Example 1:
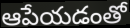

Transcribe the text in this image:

ఆపేయడంతో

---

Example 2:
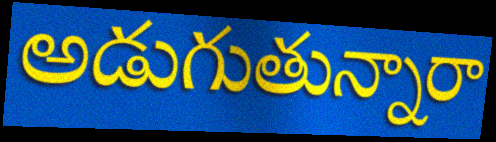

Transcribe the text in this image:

అడుగుతున్నారా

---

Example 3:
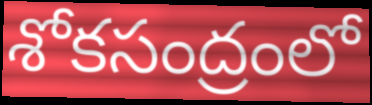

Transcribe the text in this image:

శోకసంద్రంలో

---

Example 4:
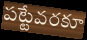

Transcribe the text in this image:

పట్టేవరకూ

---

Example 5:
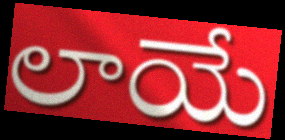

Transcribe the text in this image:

లాయే